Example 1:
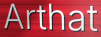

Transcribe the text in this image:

Arthat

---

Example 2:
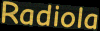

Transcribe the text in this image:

Radiola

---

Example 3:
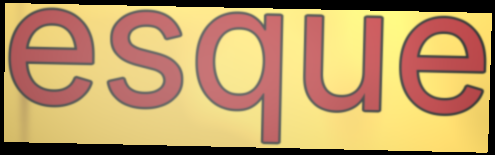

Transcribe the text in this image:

esque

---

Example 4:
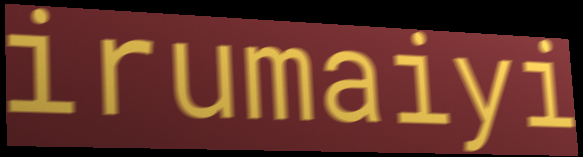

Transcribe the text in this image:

irumaiyi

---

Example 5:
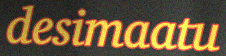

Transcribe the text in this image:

desimaatu